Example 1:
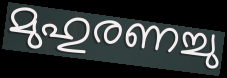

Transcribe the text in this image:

മുഹുരണച്ചു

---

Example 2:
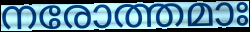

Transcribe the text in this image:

നരോത്തമാഃ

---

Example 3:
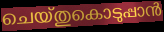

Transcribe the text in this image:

ചെയ്തുകൊടുപ്പാൻ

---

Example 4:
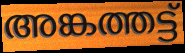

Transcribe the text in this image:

അങ്കത്തട്ട്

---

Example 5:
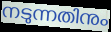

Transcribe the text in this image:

നടുന്നതിനും